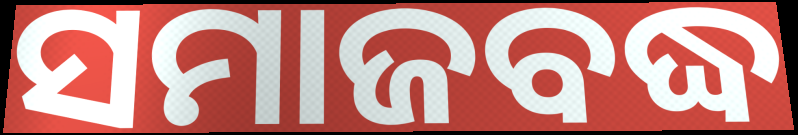
ସମାଜବଦ୍ଧ